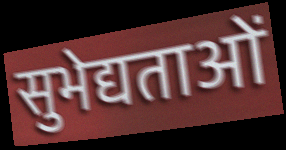
सुभेद्यताओं